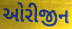
ઓરીજીન